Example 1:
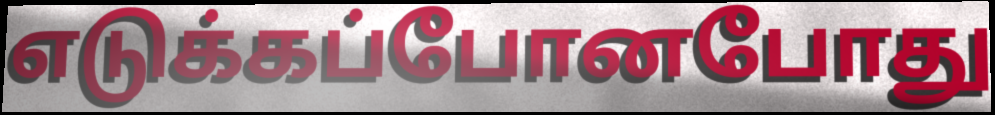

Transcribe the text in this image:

எடுக்கப்போனபோது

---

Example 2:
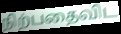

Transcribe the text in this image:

நிற்பதைவிட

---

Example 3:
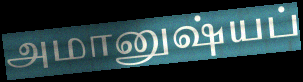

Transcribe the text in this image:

அமானுஷ்யப்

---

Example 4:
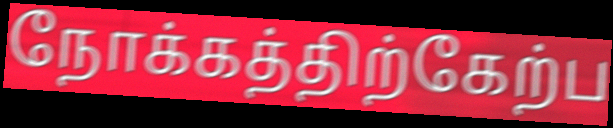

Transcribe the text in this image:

நோக்கத்திற்கேற்ப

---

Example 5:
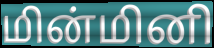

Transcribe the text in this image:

மின்மினி